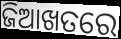
ଜିଆଖତରେ